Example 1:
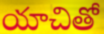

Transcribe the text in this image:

యాచితో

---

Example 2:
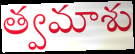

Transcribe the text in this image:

త్వమాశు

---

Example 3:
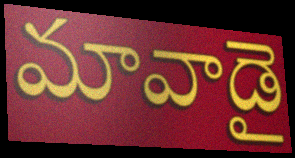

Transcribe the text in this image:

మావాడై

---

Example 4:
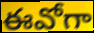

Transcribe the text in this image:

ఈవోగా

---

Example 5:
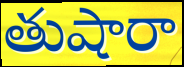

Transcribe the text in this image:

తుషారా